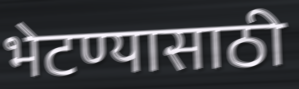
भेटण्यासाठी